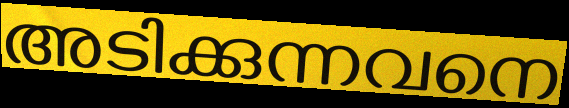
അടിക്കുന്നവനെ